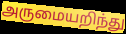
அருமையறிந்து